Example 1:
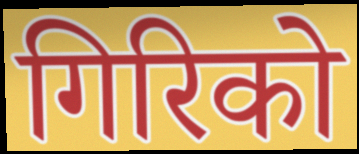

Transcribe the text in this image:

गिरिको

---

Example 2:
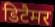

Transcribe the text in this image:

डिटैमर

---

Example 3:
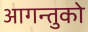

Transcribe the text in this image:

आगन्तुको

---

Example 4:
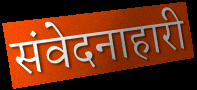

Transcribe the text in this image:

संवेदनाहारी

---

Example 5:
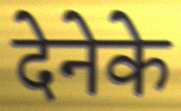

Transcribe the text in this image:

देनेके